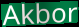
Akbor